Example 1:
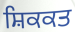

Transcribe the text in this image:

ਸ਼ਿਕਕਤ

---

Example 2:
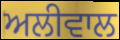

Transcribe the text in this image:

ਅਲੀਵਾਲ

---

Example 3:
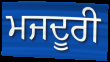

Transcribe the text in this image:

ਮਜਦੂਰੀ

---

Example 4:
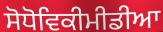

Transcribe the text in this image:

ਸੋਧੋਵਿਕੀਮੀਡੀਆ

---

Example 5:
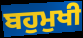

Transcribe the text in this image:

ਬਹੁਮੁਖੀ